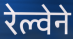
रेल्वेने